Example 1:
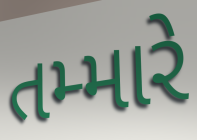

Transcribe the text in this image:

તમ્મારે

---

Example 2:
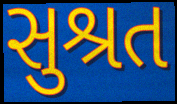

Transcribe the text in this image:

સુશ્રત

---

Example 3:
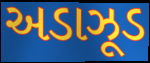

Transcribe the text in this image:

અડાઝૂડ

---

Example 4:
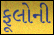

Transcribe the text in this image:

ફૂલોની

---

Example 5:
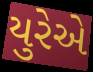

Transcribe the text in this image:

યુરેએ